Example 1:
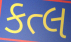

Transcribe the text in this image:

કત્લ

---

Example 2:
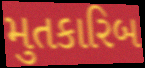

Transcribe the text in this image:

મુતકારિબ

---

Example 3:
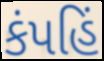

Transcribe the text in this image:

કંપહિં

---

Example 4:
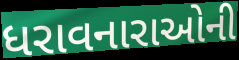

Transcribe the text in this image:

ધરાવનારાઓની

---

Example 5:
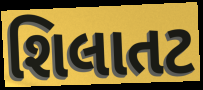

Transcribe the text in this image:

શિલાતટ